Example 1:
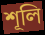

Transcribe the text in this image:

শূলি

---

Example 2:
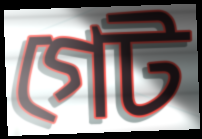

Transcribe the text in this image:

গেট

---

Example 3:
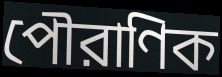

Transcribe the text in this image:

পৌরাণিক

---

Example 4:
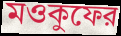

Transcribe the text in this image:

মওকুফের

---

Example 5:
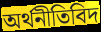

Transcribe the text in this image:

অর্থনীতিবিদ